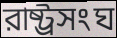
রাষ্ট্রসংঘ